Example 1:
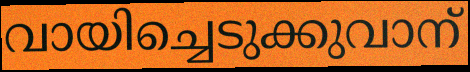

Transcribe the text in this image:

വായിച്ചെടുക്കുവാന്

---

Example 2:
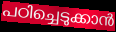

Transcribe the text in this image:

പഠിച്ചെടുക്കാൻ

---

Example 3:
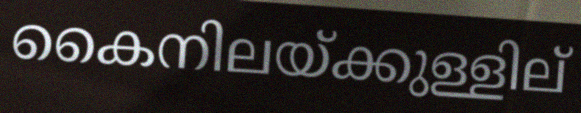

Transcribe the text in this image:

കൈനിലയ്ക്കുള്ളില്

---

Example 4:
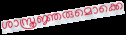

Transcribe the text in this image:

ശാസ്ത്രജ്ഞരുമൊക്കെ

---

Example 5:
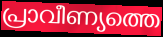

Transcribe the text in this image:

പ്രാവീണ്യത്തെ